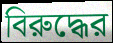
বিরুদ্ধের